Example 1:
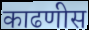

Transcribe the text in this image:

काढणीस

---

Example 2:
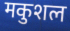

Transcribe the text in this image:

मकुशल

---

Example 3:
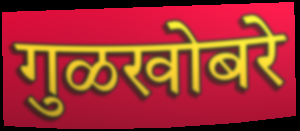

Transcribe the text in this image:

गुळखोबरे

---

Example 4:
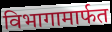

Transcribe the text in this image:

विभागामार्फत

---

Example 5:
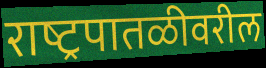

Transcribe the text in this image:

राष्ट्रपातळीवरील